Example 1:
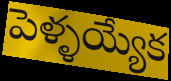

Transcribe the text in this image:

పెళ్ళయ్యేక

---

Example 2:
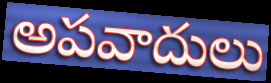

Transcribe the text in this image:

అపవాదులు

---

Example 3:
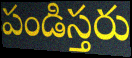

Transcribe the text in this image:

పండిస్తరు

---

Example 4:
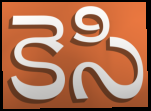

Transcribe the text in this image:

కెసి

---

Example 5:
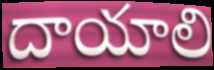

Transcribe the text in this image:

దాయాలి